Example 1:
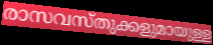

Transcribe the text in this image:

രാസവസ്തുക്കളുമായുള്ള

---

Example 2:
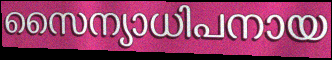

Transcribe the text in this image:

സൈന്യാധിപനായ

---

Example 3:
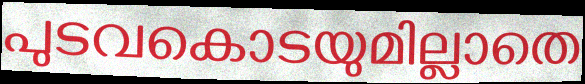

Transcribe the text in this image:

പുടവകൊടയുമില്ലാതെ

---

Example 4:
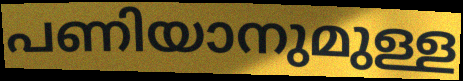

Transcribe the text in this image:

പണിയാനുമുള്ള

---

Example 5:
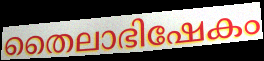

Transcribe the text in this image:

തൈലാഭിഷേകം